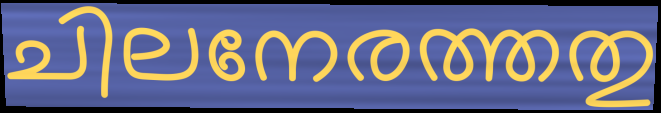
ചിലനേരത്തതു